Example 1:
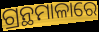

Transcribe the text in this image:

ଗ୍ରନ୍ଥମାଳାରେ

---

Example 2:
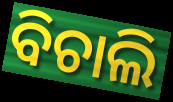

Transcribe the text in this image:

ବିଚାଲି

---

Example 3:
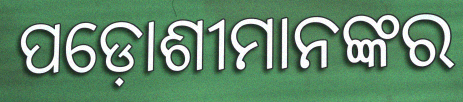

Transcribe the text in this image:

ପଡ଼ୋଶୀମାନଙ୍କର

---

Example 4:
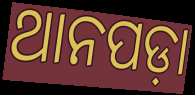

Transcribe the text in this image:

ଥାନପଡ଼ା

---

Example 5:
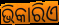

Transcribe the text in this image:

ଭିକାରିଏ